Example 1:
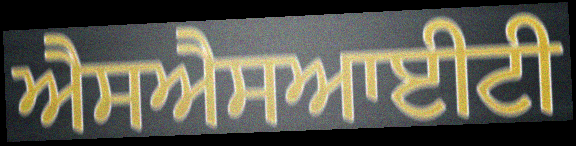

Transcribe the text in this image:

ਐਸਐਸਆਈਟੀ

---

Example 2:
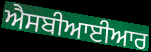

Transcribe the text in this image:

ਐਸਬੀਆਈਆਰ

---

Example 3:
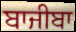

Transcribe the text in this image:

ਬਾਜੀਬਾ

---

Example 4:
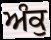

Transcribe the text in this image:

ਅੰਕੁ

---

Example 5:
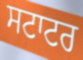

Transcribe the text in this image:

ਸਟਾਟਰ